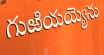
గుఱియయ్యెను